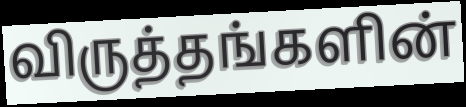
விருத்தங்களின்